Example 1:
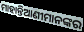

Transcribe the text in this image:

ମାହାନ୍ତିଆଣୀମାନଙ୍କର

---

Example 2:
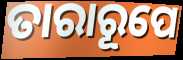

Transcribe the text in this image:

ତାରାରୂପେ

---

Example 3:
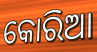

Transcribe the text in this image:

କୋରିଆ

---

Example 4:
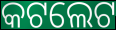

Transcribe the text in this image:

କଟଲେଟ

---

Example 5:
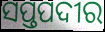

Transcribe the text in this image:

ସପ୍ତପଦୀର